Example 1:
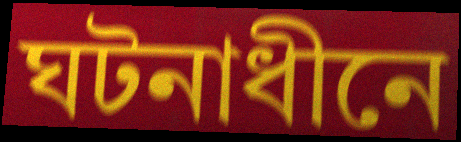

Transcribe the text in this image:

ঘটনাধীনে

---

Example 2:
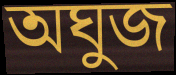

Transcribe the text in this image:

অঘুজ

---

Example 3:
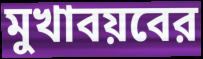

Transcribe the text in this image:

মুখাবয়বের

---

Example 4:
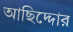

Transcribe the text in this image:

আছিদ্দোর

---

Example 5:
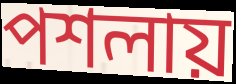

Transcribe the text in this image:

পশলায়